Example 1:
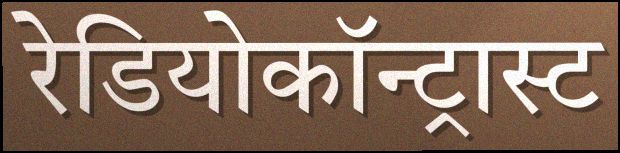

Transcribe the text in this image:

रेडियोकॉन्ट्रास्ट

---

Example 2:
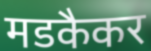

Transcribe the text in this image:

मडकैकर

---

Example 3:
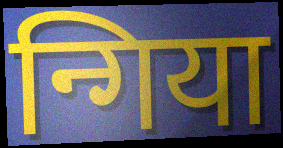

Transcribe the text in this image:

न्गिया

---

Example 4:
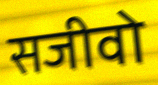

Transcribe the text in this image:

सजीवो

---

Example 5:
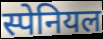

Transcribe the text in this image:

स्पेनियल